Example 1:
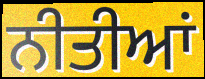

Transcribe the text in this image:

ਨੀਤੀਆਂ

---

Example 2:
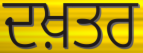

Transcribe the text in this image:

ਦਖ਼ਤਰ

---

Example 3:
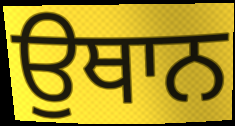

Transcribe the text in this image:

ਉਥਾਨ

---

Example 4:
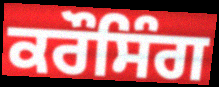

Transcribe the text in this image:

ਕਰੌਸਿੰਗ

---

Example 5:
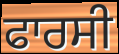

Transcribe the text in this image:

ਫਾਰਸੀ